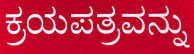
ಕ್ರಯಪತ್ರವನ್ನು